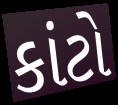
કાંટો